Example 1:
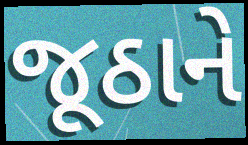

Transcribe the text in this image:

જૂઠાને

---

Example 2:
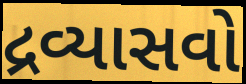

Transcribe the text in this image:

દ્રવ્યાસવો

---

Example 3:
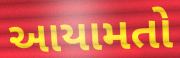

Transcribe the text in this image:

આયામતો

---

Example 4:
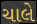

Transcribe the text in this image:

ચાલે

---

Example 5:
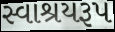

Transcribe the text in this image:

સ્વાશ્રયરૂપ